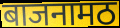
बाजनामठ